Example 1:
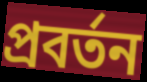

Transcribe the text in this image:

প্রবর্তন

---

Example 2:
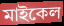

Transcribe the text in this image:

মাইকেল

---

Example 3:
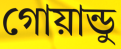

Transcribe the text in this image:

গোয়ান্ডু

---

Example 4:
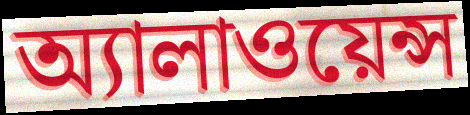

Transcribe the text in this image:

অ্যালাওয়েন্স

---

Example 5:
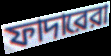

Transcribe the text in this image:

ফাদারেরা